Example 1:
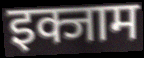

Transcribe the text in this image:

इक्जाम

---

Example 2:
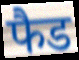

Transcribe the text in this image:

फैड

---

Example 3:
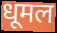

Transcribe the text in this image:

धूमल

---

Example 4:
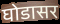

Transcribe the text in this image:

घोडासर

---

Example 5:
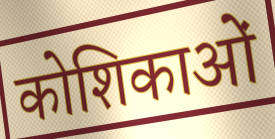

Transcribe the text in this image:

कोशिकाओं